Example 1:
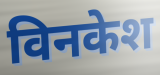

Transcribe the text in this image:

विनकेश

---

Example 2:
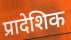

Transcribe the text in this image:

प्रादेशिक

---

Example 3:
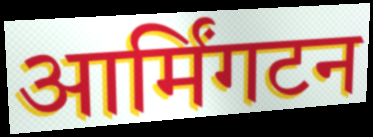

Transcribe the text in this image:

आर्मिंगटन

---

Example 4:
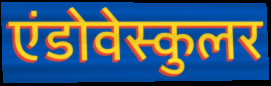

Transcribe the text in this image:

एंडोवेस्कुलर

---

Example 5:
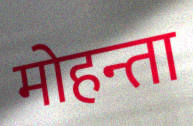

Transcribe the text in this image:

मोहन्ता